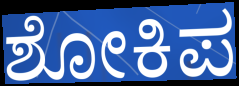
ಶೋಕಿಪ